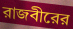
রাজবীরের